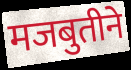
मजबुतीने